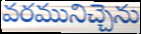
వరమునిచ్చెను